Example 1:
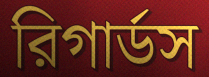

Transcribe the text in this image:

রিগার্ডস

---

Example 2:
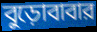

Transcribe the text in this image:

বুড়োবাবার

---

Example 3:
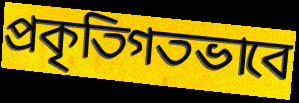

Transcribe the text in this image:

প্রকৃতিগতভাবে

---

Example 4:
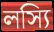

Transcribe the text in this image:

লস্যি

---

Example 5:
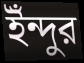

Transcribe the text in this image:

ইঁন্দুর